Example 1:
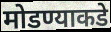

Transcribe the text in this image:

मोडण्याकडे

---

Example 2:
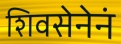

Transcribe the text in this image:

शिवसेनेनं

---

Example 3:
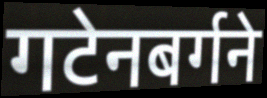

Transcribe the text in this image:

गटेनबर्गने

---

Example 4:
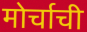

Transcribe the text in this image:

मोर्चाची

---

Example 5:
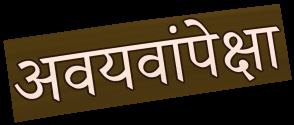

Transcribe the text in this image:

अवयवांपेक्षा